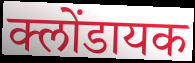
क्लोंडायक